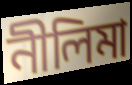
নীলিমা